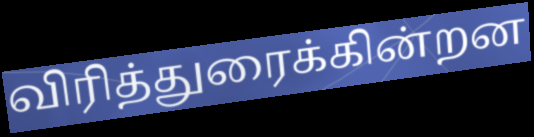
விரித்துரைக்கின்றன